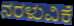
ನರಳುವಿಕೆ